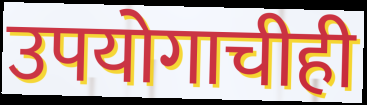
उपयोगाचीही